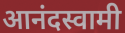
आनंदस्वामी